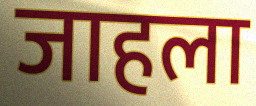
जाहला